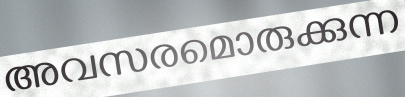
അവസരമൊരുക്കുന്ന